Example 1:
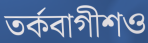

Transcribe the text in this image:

তর্কবাগীশও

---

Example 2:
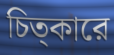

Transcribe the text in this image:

চিত্কারে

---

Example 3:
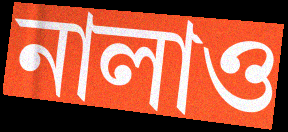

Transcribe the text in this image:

নালাও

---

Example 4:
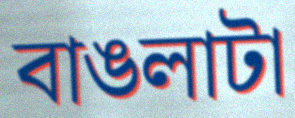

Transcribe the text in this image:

বাঙলাটা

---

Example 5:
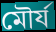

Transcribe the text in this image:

মৌর্য